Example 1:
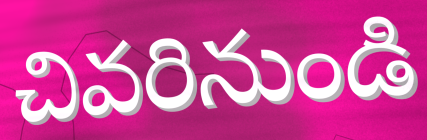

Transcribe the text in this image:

చివరినుండి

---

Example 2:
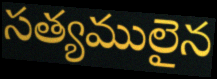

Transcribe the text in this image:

సత్యములైన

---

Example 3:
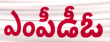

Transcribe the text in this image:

ఎంపీడీఓ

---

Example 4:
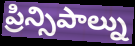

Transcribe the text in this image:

ప్రిన్సిపాల్ను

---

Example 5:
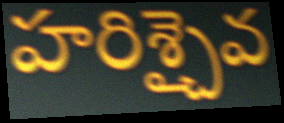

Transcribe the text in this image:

హరిశ్చైవ